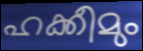
ഹക്കീമും